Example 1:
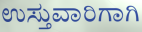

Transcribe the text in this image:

ಉಸ್ತುವಾರಿಗಾಗಿ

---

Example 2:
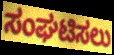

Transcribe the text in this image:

ಸಂಘಟಿಸಲು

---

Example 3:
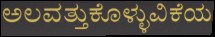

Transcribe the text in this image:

ಅಲವತ್ತುಕೊಳ್ಳುವಿಕೆಯ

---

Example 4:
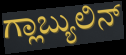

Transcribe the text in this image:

ಗ್ಲಾಬ್ಯುಲಿನ್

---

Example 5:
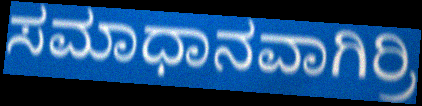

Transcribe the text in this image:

ಸಮಾಧಾನವಾಗಿರ್ರಿ